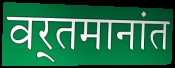
वर्तमानांत